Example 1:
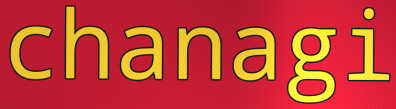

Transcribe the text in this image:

chanagi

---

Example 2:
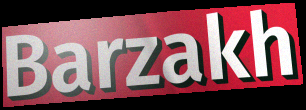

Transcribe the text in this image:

Barzakh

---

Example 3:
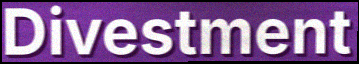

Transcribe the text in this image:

Divestment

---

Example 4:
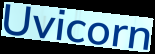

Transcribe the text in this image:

Uvicorn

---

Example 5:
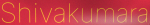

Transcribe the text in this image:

Shivakumara